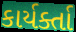
કાર્યર્ક્તા